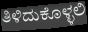
ತಿಳಿದುಕೊಳ್ಳಲಿ